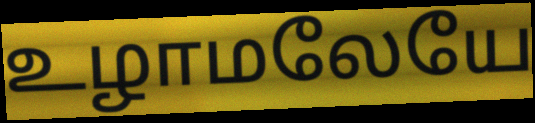
உழாமலேயே